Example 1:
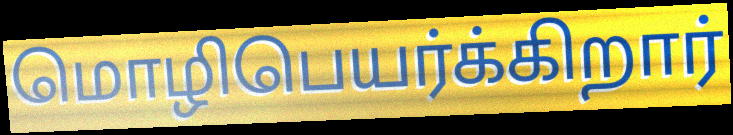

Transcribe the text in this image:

மொழிபெயர்க்கிறார்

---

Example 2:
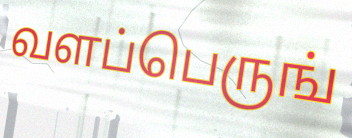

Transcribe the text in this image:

வளப்பெருங்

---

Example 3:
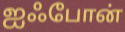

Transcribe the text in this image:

ஐஃபோன்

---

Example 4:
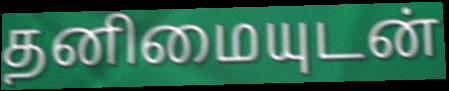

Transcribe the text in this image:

தனிமையுடன்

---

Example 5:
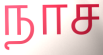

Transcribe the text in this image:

நாச